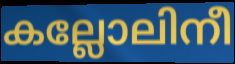
കല്ലോലിനീ